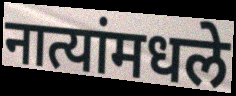
नात्यांमधले